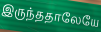
இருந்ததாலேயே